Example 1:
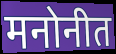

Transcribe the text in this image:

मनोनीत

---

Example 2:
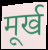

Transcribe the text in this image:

मूर्ख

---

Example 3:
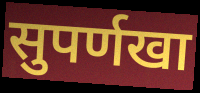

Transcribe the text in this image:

सुपर्णखा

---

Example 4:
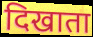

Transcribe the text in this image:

दिखाता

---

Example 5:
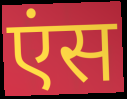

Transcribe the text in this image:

एंस